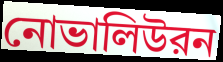
নোভালিউরন